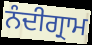
ਨੰਦੀਗ੍ਰਾਮ